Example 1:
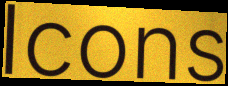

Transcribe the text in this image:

Icons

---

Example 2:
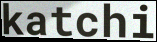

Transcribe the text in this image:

katchi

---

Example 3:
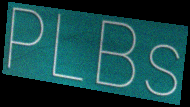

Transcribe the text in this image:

PLBs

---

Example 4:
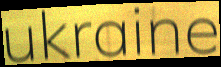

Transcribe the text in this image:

ukraine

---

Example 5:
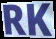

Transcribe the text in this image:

RK